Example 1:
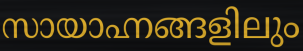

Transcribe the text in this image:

സായാഹ്നങ്ങളിലും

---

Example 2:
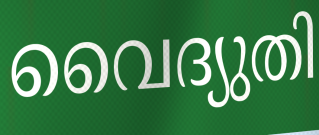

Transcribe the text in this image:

വൈദ്യുതി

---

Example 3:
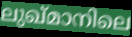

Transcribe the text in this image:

ലുഖ്മാനിലെ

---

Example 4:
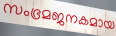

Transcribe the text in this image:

സംഭ്രമജനകമായ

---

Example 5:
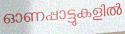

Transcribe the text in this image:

ഓണപ്പാട്ടുകളിൽ